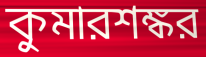
কুমারশঙ্কর